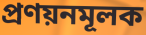
প্রণয়নমূলক